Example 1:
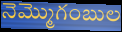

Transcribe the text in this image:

నెమ్మొగంబుల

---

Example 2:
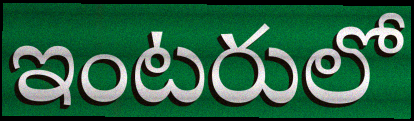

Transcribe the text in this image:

ఇంటరులో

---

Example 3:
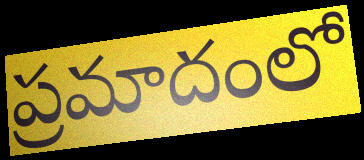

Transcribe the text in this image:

ప్రమాదంలో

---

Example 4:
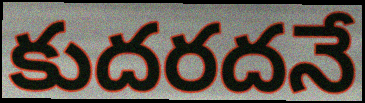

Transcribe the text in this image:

కుదరదనే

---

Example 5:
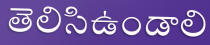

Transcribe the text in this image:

తెలిసిఉండాలి